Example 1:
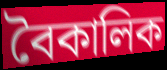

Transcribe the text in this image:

বৈকালিক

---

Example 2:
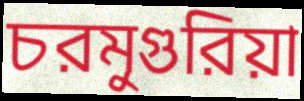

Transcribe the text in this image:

চরমুগুরিয়া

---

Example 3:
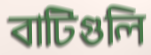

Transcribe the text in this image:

বাটিগুলি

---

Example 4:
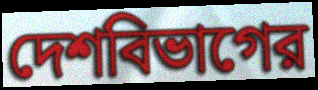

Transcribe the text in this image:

দেশবিভাগের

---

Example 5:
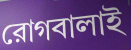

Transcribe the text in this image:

রোগবালাই